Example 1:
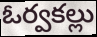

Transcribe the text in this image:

ఓర్వకల్లు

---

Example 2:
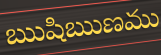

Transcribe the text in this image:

ఋషిఋణము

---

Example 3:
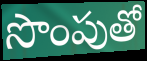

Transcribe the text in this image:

సొంపుతో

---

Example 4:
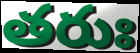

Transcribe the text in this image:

తరుః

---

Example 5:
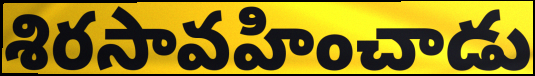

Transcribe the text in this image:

శిరసావహించాడు